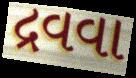
દ્રવવા